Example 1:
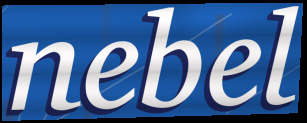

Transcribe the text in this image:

nebel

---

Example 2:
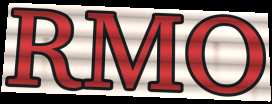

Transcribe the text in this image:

RMO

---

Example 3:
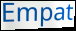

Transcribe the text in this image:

Empat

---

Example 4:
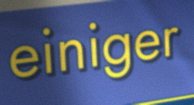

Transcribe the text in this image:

einiger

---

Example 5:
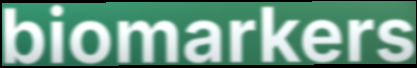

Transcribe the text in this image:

biomarkers